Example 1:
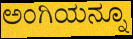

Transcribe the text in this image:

ಅಂಗಿಯನ್ನೂ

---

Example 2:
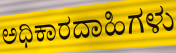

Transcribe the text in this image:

ಅಧಿಕಾರದಾಹಿಗಳು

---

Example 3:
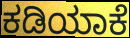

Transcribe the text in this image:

ಕಡಿಯಾಕೆ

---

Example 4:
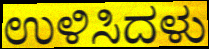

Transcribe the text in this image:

ಉಳಿಸಿದಳು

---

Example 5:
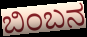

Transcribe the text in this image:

ಬಿಂಬನ